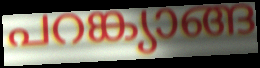
പറങ്ക്യാങ്ങ